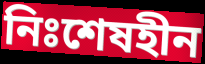
নিঃশেষহীন